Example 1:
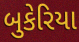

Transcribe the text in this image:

બુકેરિયા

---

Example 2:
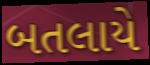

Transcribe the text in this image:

બતલાયે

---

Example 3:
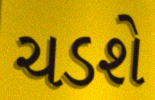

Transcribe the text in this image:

ચડશે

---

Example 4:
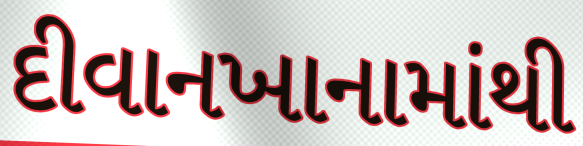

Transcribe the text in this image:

દીવાનખાનામાંથી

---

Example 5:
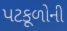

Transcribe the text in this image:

પટકૂળોની